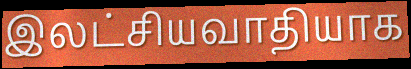
இலட்சியவாதியாக